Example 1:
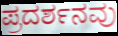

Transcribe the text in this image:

ಪ್ರದರ್ಶನವು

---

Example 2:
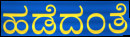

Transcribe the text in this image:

ಹಡೆದಂತೆ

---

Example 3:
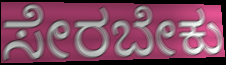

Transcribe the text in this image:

ಸೇರಬೇಕು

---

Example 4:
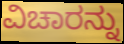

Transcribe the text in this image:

ವಿಚಾರನ್ನು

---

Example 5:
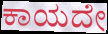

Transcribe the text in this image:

ಕಾಯದೇ